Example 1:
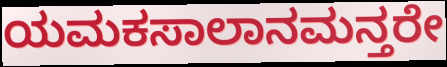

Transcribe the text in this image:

ಯಮಕಸಾಲಾನಮನ್ತರೇ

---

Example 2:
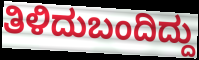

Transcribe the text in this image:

ತಿಳಿದುಬಂದಿದ್ದು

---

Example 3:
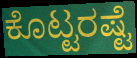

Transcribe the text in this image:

ಕೊಟ್ಟರಷ್ಟೆ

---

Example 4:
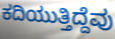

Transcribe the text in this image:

ಕದಿಯುತ್ತಿದ್ದೆವು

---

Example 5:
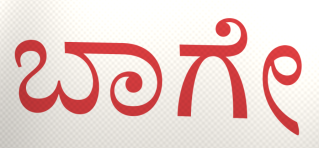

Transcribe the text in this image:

ಬಾಗೇ